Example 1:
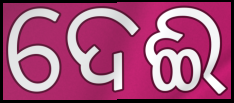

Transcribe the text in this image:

ଦେଈ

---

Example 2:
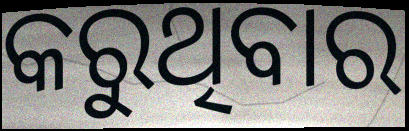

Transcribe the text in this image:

କରୁଥିବାର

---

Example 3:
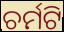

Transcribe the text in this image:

ଚର୍ମଟି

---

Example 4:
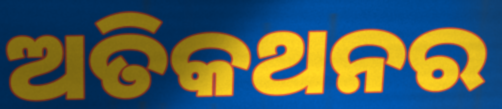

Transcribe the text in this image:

ଅତିକଥନର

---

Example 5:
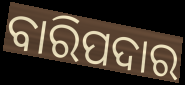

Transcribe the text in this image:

ବାରିପଦାର